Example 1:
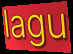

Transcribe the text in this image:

lagu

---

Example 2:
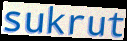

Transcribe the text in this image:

sukrut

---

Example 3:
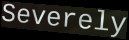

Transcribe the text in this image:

Severely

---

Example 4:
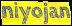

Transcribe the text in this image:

niyojan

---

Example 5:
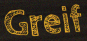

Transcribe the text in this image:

Greif